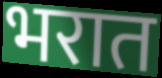
भरात